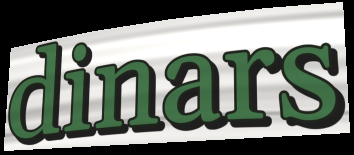
dinars